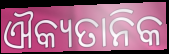
ଐକ୍ୟତାନିକ